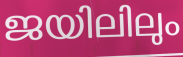
ജയിലിലും